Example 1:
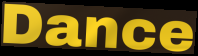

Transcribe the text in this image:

Dance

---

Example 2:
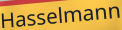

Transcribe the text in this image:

Hasselmann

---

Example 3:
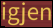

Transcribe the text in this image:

igjen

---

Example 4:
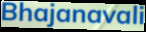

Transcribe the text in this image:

Bhajanavali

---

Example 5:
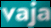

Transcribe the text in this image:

vaja